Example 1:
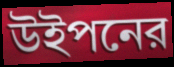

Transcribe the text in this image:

উইপনের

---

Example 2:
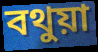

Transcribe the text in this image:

বথুয়া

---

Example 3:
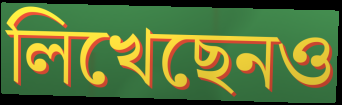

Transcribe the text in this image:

লিখেছেনও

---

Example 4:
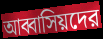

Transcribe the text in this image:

আব্বাসিয়দের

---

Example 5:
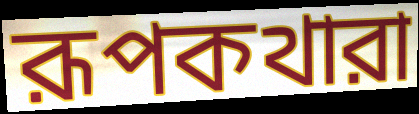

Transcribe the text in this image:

রূপকথারা